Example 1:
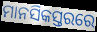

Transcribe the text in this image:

ମାନସିକସ୍ତରରେ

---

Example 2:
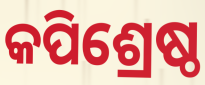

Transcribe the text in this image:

କପିଶ୍ରେଷ୍ଠ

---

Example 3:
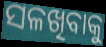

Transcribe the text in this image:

ସଳଖିବାକୁ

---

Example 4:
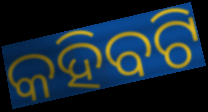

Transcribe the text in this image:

କହିବଟି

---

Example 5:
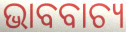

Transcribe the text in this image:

ଭାବବାଚ୍ୟ